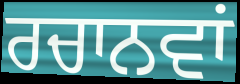
ਰਚਾਨਵਾਂ